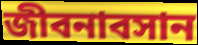
জীবনাবসান